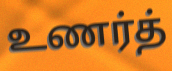
உணர்த்